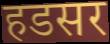
हडसर